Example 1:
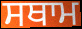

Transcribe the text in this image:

ਸਥਾਮ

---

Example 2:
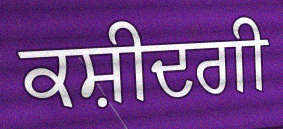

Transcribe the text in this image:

ਕਸ਼ੀਦਗੀ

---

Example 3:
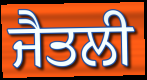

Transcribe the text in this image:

ਜੈਤਲੀ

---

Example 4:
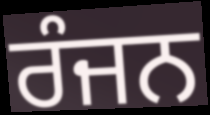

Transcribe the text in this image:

ਰੰਜਨ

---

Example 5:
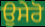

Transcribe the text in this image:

ਉਸੇਰੋ